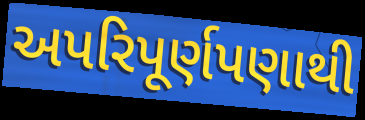
અપરિપૂર્ણપણાથી